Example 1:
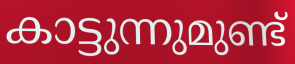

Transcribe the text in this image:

കാട്ടുന്നുമുണ്ട്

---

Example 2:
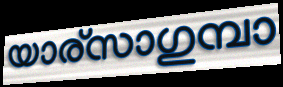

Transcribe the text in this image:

യാര്സാഗുമ്പാ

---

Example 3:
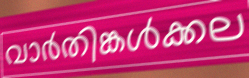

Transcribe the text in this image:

വാർതിങ്കൾക്കല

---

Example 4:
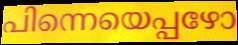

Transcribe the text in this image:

പിന്നെയെപ്പഴോ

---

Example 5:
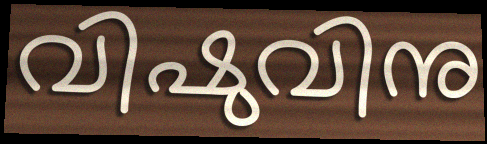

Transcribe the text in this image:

വിഷുവിനു